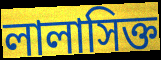
লালাসিক্ত